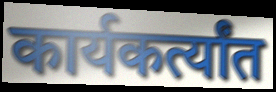
कार्यकर्त्यांत